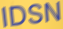
IDSN